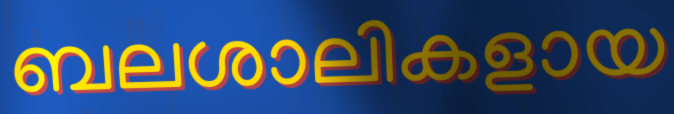
ബലശാലികളായ